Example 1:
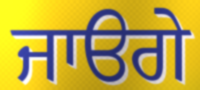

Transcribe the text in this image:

ਜਾੳਗੇ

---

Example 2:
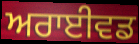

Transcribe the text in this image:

ਅਰਾਈਵਡ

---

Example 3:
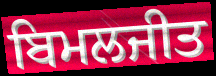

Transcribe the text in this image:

ਬਿਮਲਜੀਤ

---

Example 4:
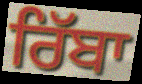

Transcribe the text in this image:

ਰਿੱਬਾ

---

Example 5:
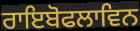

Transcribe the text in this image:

ਰਾਇਬੋਫਲਾਵਿਨ